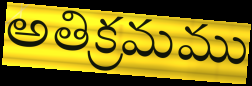
అతిక్రమము